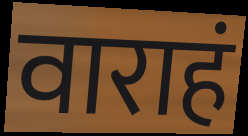
वाराहं